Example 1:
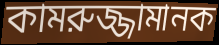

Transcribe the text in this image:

কামৰুজ্জামানক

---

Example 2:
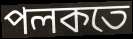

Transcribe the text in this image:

পলকতে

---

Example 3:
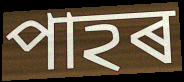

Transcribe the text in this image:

পাহৰ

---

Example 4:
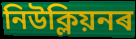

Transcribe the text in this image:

নিউক্লিয়নৰ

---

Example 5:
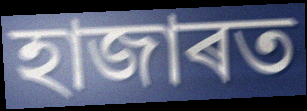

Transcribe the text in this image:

হাজাৰত